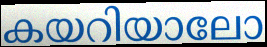
കയറിയാലോ